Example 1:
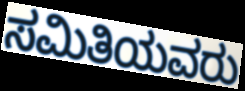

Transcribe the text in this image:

ಸಮಿತಿಯವರು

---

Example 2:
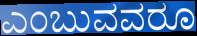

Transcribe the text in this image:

ಎಂಬುವವರೂ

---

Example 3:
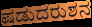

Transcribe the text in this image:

ಷಡುದರುಶನ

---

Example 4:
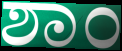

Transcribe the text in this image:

ಶಾಂ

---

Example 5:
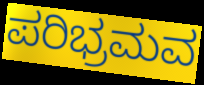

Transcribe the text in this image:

ಪರಿಭ್ರಮವ